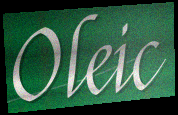
Oleic